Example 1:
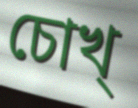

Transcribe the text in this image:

চোখ্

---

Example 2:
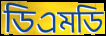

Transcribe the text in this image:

ডিএমডি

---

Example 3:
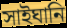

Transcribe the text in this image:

সাইঘানি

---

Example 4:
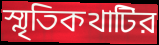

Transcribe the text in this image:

স্মৃতিকথাটির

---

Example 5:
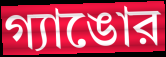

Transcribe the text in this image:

গ্যাঙোর